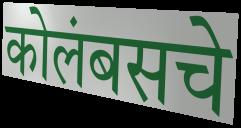
कोलंबसचे